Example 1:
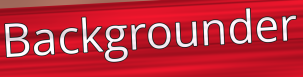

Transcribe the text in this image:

Backgrounder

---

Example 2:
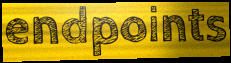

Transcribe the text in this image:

endpoints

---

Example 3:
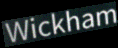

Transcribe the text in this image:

Wickham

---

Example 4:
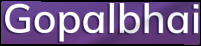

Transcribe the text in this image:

Gopalbhai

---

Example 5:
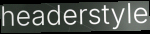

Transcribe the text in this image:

headerstyle